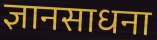
ज्ञानसाधना